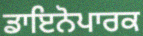
ਡਾਇਨੋਪਾਰਕ